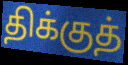
திக்குத்